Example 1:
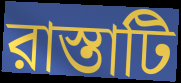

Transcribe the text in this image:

রাস্তাটি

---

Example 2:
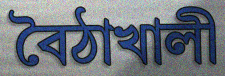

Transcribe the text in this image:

বৈঠাখালী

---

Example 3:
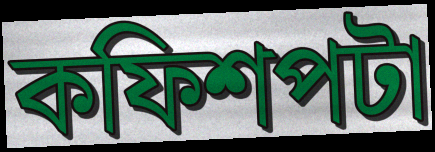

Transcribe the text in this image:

কফিশপটা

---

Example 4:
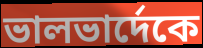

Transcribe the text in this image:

ভালভার্দেকে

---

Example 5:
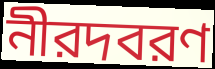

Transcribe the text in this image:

নীরদবরণ